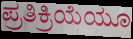
ಪ್ರತಿಕ್ರಿಯೆಯೂ